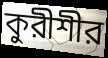
কুরীশীর